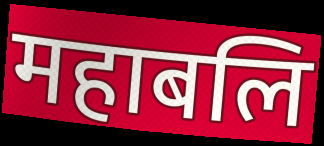
महाबलि